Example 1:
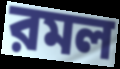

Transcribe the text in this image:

রমল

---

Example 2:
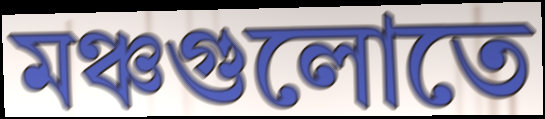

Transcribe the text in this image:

মঞ্চগুলোতে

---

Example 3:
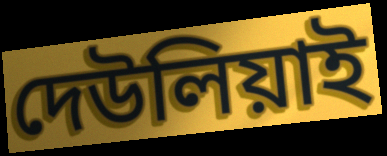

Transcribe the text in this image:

দেউলিয়াই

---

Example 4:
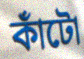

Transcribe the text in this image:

কাঁটো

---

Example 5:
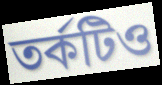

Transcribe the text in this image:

তর্কটিও